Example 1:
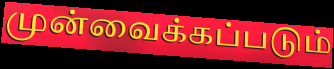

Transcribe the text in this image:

முன்வைக்கப்படும்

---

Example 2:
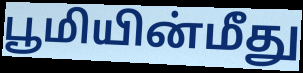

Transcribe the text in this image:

பூமியின்மீது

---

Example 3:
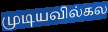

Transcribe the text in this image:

முடியவில்கல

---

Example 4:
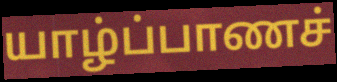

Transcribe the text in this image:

யாழ்ப்பாணச்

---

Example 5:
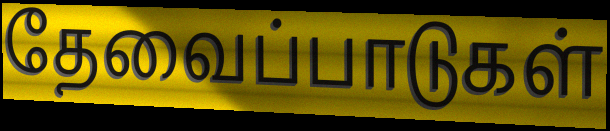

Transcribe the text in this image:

தேவைப்பாடுகள்